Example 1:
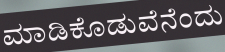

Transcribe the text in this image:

ಮಾಡಿಕೊಡುವೆನೆಂದು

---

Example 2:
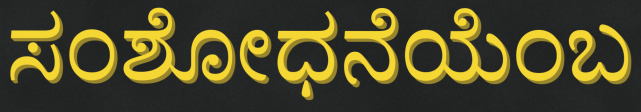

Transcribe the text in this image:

ಸಂಶೋಧನೆಯೆಂಬ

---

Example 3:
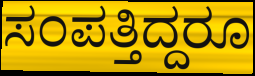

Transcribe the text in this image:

ಸಂಪತ್ತಿದ್ದರೂ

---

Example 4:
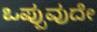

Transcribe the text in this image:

ಒಪ್ಪುವುದೇ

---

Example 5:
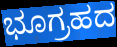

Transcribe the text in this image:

ಭೂಗ್ರಹದ